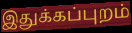
இதுக்கப்புறம்